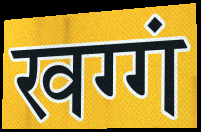
खग्गं